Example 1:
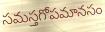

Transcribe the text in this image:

సమస్తగోపమానసం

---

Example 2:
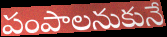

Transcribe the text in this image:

పంపాలనుకునే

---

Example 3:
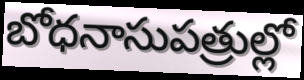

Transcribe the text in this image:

బోధనాసుపత్రుల్లో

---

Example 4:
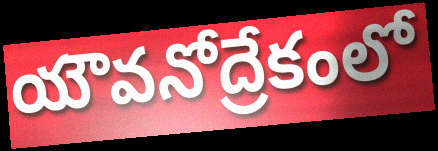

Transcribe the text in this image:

యౌవనోద్రేకంలో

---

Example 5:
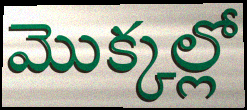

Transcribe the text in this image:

మొక్కల్లో